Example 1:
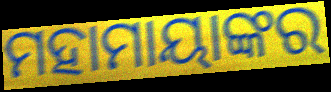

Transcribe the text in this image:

ମହାମାୟାଙ୍କର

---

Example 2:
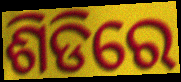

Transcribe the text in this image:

ଶିଡିରେ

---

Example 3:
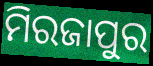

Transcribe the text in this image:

ମିରଜାପୁର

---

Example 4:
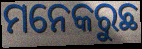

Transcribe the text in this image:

ମନେକରୁଛ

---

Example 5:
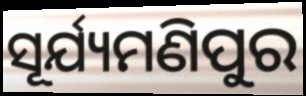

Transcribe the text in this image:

ସୂର୍ଯ୍ୟମଣିପୁର